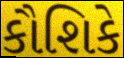
કૌશિકે